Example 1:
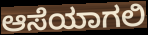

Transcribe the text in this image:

ಆಸೆಯಾಗಲಿ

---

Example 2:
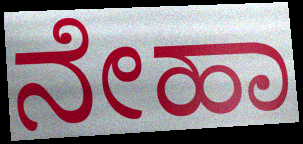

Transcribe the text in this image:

ನೇಹಾ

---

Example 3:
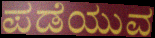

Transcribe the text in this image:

ಪಡೆಯುವ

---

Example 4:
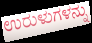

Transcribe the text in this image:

ಉರುಳುಗಳನ್ನು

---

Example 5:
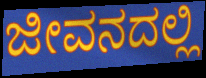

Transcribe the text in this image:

ಜೀವನದಲ್ಲಿ